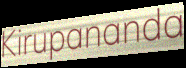
Kirupananda